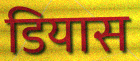
डियास